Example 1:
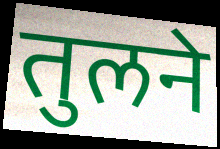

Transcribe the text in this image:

तुलने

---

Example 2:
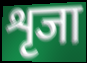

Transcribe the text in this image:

शृजा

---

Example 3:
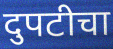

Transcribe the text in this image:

दुपटीचा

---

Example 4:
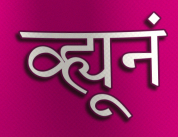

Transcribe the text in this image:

व्ह्यूनं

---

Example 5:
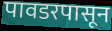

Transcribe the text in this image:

पावडरपासून